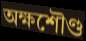
অক্ষশৌণ্ড